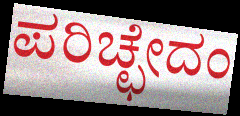
ಪರಿಚ್ಛೇದಂ